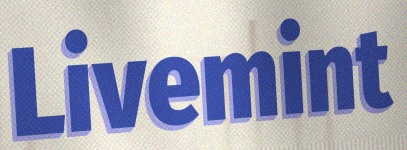
Livemint